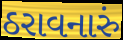
ઠરાવનારું